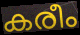
കരീം